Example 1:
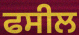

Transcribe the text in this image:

ਫਸੀਲ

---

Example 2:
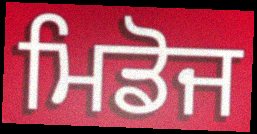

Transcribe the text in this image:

ਮਿਡੋਜ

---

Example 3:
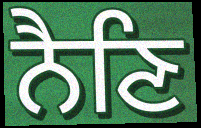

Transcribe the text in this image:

ਨੈਣਿ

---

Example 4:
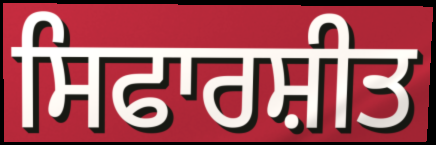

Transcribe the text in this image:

ਸਿਫਾਰਸ਼ੀਤ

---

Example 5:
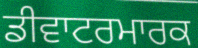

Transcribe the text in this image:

ਡੀਵਾਟਰਮਾਰਕ